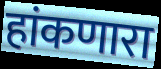
हांकणारा